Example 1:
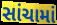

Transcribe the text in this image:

સાંચામાં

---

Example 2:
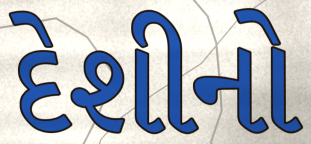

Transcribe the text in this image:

દેશીનો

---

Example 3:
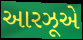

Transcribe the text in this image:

આરઝૂએ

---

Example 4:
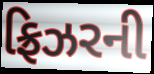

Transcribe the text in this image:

ફ્રિઝરની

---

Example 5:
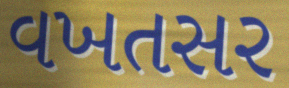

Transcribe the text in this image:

વખતસર